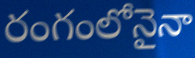
రంగంలోనైనా